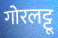
गोरलट्टू